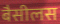
बैसीलस